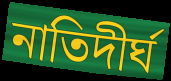
নাতিদীর্ঘ